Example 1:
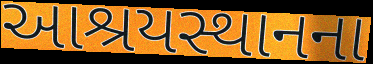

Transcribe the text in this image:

આશ્રયસ્થાનના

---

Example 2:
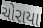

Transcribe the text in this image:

ચોરાયા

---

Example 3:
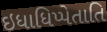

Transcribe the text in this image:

ઇધાધિપ્પેતાતિ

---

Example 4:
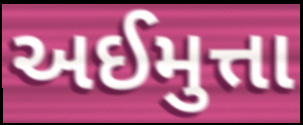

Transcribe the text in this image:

અઈમુત્તા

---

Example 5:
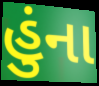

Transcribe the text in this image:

હુંના